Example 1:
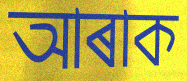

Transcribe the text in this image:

আৰাক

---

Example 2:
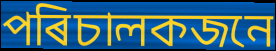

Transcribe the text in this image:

পৰিচালকজনে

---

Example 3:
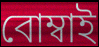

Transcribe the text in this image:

বোম্বাই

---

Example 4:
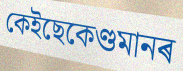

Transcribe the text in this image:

কেইছেকেণ্ডমানৰ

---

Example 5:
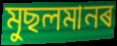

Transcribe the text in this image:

মুছলমানৰ